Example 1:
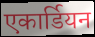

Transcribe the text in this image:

एकार्डियन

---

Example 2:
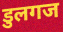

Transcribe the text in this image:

डुलगज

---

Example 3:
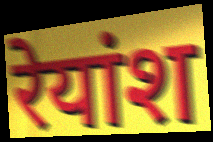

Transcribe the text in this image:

रेयांश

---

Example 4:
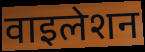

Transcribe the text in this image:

वाइलेशन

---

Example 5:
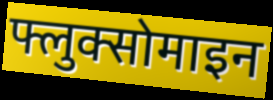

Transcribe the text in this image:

फ्लुक्सोमाइन